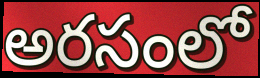
అరసంలో